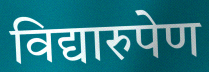
विद्यारुपेण